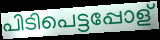
പിടിപെട്ടപ്പോള്